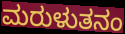
ಮರುಳುತನಂ